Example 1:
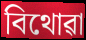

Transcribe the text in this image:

বিথোৱা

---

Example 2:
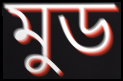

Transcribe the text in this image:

মুড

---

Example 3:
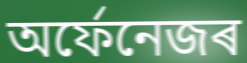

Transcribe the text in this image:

অৰ্ফেনেজৰ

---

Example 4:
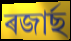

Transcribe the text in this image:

ৰজাৰ্ছ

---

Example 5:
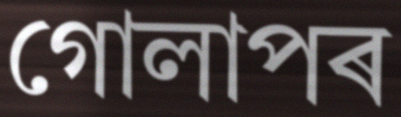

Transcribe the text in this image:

গোলাপৰ